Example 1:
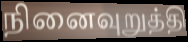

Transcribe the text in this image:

நினைவுறுத்தி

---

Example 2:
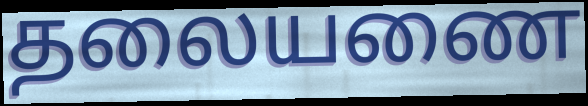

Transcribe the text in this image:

தலையணை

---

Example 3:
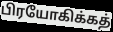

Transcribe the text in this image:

பிரயோகிக்கத்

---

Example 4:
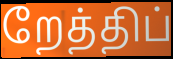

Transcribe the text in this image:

றேத்திப்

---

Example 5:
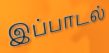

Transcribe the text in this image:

இப்பாடல்